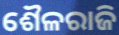
ଶୈଳରାଜି